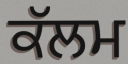
ਕੱਲਮ